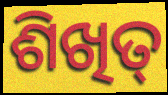
ଶିଖିତ୍